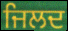
ਜਿਲਦ